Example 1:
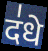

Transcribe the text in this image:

द॑धे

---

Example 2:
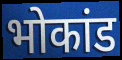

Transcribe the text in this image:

भोकांड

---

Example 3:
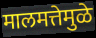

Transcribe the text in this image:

मालमत्तेमुळे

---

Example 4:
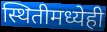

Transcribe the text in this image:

स्थितीमध्येही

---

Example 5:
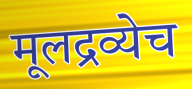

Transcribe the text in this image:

मूलद्रव्येच